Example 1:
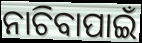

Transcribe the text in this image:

ନାଚିବାପାଇଁ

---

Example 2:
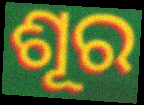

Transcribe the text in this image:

ଶୂର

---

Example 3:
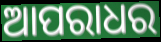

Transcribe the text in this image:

ଆପରାଧର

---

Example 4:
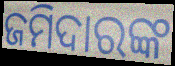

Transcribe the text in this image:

ଜମିଦାରଙ୍କ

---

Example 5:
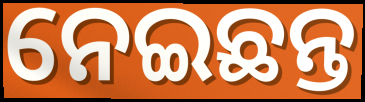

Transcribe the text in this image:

ନେଇଛନ୍ତ